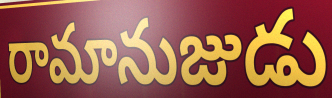
రామానుజుడు